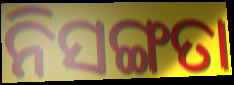
ନିସଙ୍ଗତା